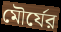
মৌর্যের